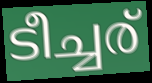
ടീച്ചര്